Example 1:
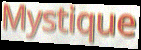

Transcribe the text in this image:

Mystique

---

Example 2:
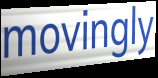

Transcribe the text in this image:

movingly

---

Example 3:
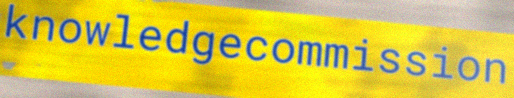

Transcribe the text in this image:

knowledgecommission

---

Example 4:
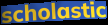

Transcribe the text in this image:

scholastic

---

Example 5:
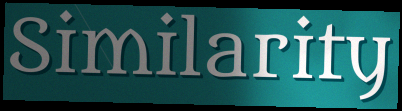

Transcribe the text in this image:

Similarity